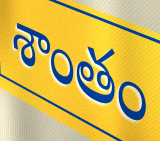
శాంతం